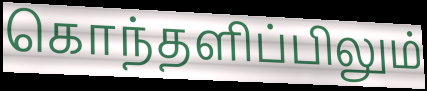
கொந்தளிப்பிலும்